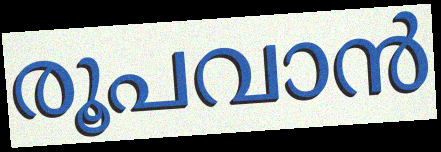
രൂപവാൻ